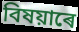
বিষয়াৰে